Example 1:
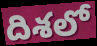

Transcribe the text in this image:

దిశలో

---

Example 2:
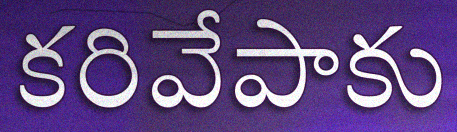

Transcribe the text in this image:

కరివేపాకు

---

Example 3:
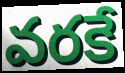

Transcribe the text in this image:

వరకే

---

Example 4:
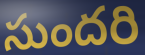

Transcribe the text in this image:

సుందరి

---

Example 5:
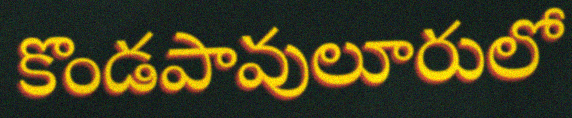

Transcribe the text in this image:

కొండపావులూరులో